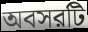
অবসরটি